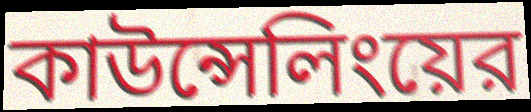
কাউন্সেলিংয়ের